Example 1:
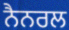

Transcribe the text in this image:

ਨੈਨਰਲ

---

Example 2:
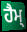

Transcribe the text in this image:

ਹੈਮ੍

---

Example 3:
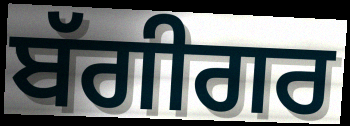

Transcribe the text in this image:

ਬੱਗੀਗਰ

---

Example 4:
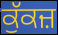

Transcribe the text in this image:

ਕੁੱਕਜ਼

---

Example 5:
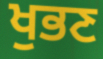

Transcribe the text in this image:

ਖੁਭਣ